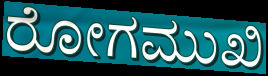
ರೋಗಮುಖಿ